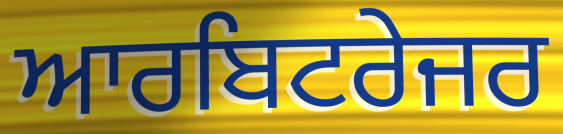
ਆਰਬਿਟਰੇਜਰ